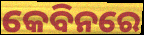
କେବିନରେ